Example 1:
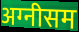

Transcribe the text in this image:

अग्नीसम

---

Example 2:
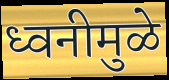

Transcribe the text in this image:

ध्वनीमुळे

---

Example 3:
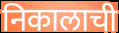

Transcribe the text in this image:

निकालाची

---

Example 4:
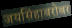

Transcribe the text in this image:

जयसिंहाबरोबर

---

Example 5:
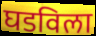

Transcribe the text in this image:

घडविला